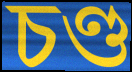
চণ্ড